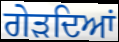
ਗੇੜਦਿਆਂ